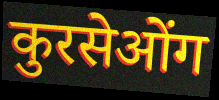
कुरसेओंग